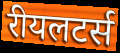
रीयलटर्स